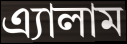
এ্যালাম